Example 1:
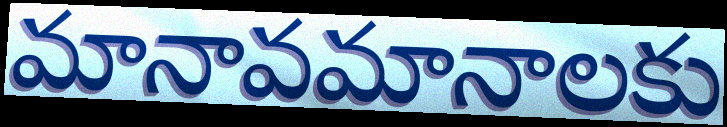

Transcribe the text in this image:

మానావమానాలకు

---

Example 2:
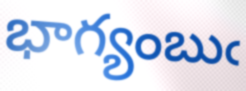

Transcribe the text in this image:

భాగ్యంబుఁ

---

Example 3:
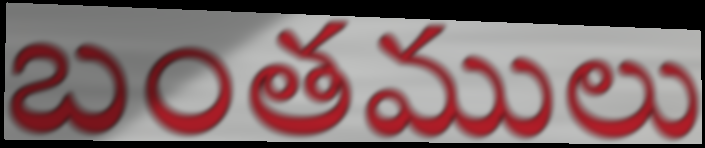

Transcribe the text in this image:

బంతములు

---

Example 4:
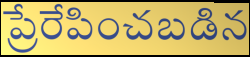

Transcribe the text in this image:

ప్రేరేపించబడిన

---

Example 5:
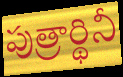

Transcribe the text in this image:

పుత్రార్థినీ